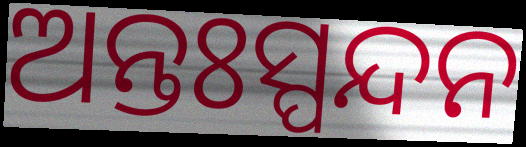
ଅନ୍ତଃସ୍ପନ୍ଦନ